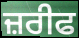
ਜ਼ਰੀਫ